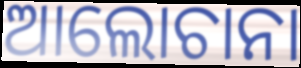
ଆଲୋଚାନା